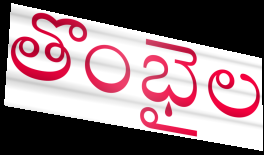
తొంభైల